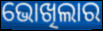
ଭୋଖିଲାର